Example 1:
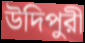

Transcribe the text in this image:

উদিপুরী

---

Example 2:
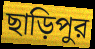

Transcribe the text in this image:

ছাড়িপুর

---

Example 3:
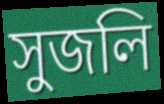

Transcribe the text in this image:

সুজলি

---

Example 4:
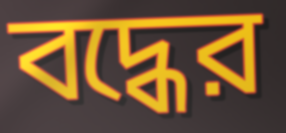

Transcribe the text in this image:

বদ্ধের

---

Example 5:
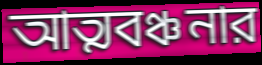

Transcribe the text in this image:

আত্মবঞ্চনার